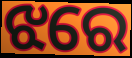
ଝରେ